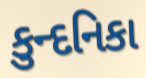
કુન્દનિકા